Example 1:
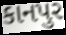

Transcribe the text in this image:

કાનપુર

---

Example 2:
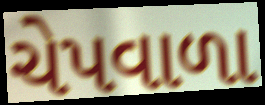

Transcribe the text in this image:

ચેપવાળા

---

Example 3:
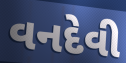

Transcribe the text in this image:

વનદેવી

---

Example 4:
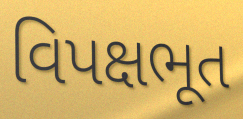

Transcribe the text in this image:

વિપક્ષભૂત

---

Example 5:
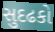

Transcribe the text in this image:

સુદઢકો